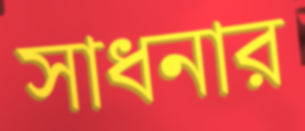
সাধনার